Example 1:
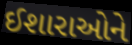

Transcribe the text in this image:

ઈશારાઓને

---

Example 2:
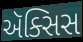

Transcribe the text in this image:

ઍક્સિસ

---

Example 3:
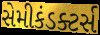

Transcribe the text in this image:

સેમીકંડક્ટર્સ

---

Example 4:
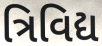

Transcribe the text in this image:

ત્રિવિદ્ય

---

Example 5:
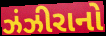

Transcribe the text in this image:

ઝંઝીરાનો